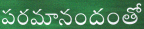
పరమానందంతో